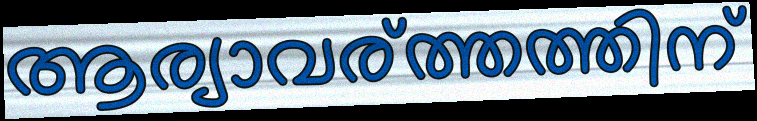
ആര്യാവര്ത്തത്തിന്